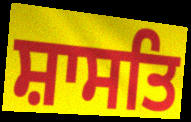
ਸ਼ਾਸਤਿ